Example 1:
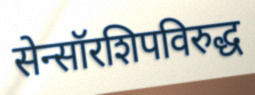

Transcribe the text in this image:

सेन्सॉरशिपविरुद्ध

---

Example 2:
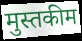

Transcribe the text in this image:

मुस्तकीम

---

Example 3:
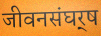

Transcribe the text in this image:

जीवनसंघर्ष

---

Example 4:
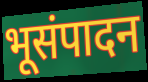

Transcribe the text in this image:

भूसंपादन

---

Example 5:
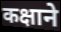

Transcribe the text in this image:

कक्षाने